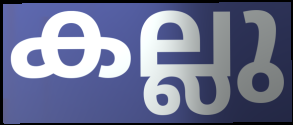
കല്ലു